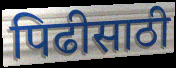
पिढीसाठी